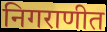
निगराणीत